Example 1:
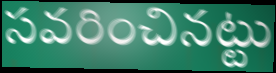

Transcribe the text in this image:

సవరించినట్టు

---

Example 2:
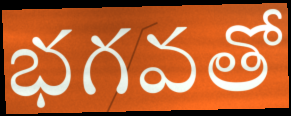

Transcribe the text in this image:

భగవతో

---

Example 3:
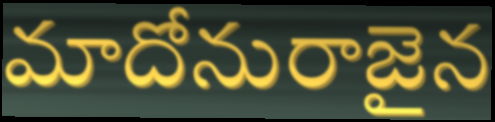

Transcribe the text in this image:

మాదోనురాజైన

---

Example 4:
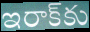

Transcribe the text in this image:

ఇరాక్‌కు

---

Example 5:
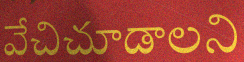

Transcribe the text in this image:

వేచిచూడాలని